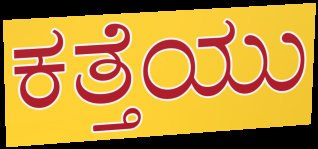
ಕತ್ತೆಯು